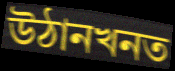
উঠানখনত